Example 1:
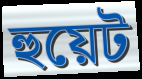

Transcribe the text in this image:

হুয়েট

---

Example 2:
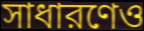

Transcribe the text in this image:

সাধারণেও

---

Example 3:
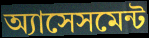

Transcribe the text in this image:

অ্যাসেসমেন্ট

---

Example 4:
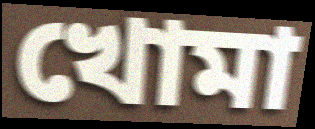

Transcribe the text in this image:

খোমা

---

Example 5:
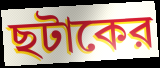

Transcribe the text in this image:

ছটাকের